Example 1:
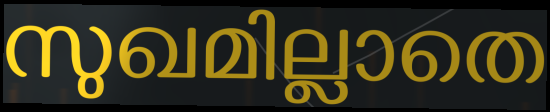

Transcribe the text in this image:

സുഖമില്ലാതെ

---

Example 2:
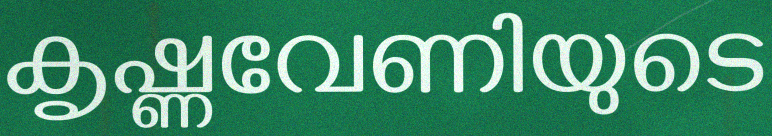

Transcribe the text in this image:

കൃഷ്ണവേണിയുടെ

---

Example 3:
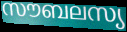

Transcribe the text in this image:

സൗബലസ്യ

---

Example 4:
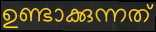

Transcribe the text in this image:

ഉണ്ടാക്കുന്നത്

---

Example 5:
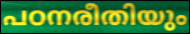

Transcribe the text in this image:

പഠനരീതിയും